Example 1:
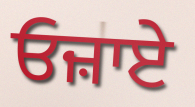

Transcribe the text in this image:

ਓਜ਼ਾਏ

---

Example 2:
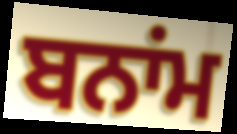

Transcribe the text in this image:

ਬਨਾਂਮ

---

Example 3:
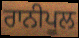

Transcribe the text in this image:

ਰਾਨੀਪੂਲ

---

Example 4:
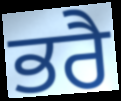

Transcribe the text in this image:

ਭਰੈ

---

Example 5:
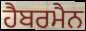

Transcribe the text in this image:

ਹੈਬਰਮੈਨ